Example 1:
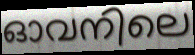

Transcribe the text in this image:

ഓവനിലെ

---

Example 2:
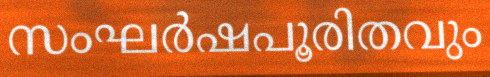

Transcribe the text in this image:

സംഘർഷപൂരിതവും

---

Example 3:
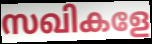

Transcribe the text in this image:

സഖികളേ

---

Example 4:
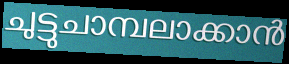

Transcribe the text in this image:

ചുട്ടുചാമ്പലാക്കാൻ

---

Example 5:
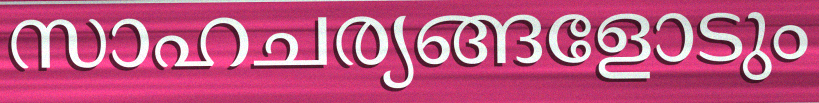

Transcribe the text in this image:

സാഹചര്യങ്ങളോടും